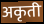
अकृती